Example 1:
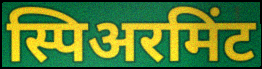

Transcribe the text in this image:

स्पिअरमिंट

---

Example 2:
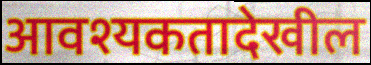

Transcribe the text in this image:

आवश्यकतादेखील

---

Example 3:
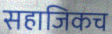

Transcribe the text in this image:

सहाजिकच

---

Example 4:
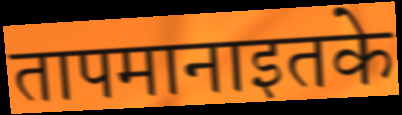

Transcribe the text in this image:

तापमानाइतके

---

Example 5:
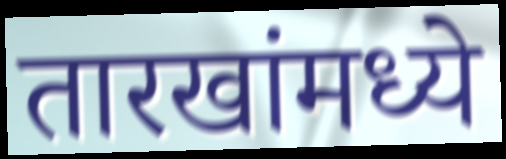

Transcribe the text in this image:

तारखांमध्ये